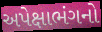
અપેક્ષાભંગનો